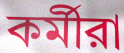
কর্মীরা